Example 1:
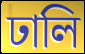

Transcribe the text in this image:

ঢালি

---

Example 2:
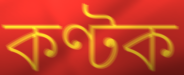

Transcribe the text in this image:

কণ্টক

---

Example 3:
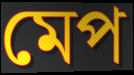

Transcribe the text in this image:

মেপ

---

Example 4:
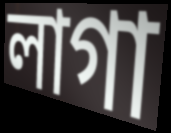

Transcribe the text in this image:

লাগা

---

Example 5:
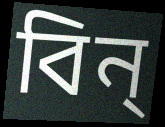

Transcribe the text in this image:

বিন্